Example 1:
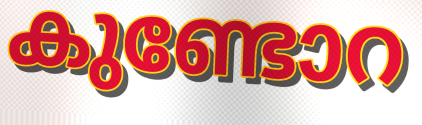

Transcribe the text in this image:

കുണ്ടോറ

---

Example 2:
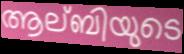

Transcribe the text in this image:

ആല്ബിയുടെ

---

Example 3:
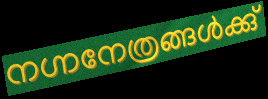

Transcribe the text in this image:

നഗ്നനേത്രങ്ങൾക്കു്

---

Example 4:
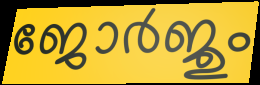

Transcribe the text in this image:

ജോർജും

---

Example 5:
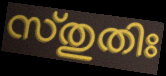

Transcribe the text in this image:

സ്തുതിഃ